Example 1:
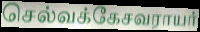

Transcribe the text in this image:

செல்வக்கேசவராயர்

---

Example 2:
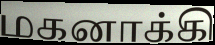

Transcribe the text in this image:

மகனாக்கி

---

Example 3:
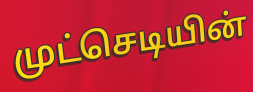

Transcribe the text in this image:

முட்செடியின்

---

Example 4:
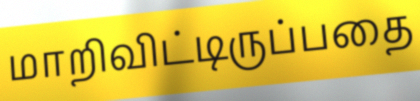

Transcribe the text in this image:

மாறிவிட்டிருப்பதை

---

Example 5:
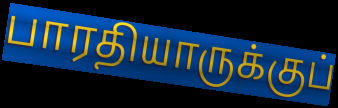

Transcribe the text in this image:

பாரதியாருக்குப்